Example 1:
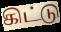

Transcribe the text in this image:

கிட்டு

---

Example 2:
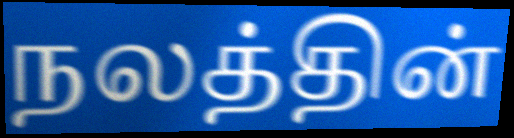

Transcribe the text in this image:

நலத்தின்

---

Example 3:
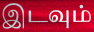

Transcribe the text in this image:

இடவும்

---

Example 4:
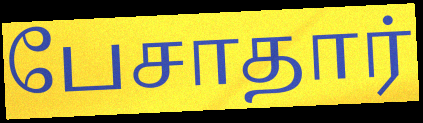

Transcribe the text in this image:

பேசாதார்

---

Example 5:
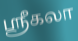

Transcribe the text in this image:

ஶ்ரீகலா